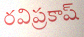
రవిప్రకాష్